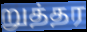
றுத்தர